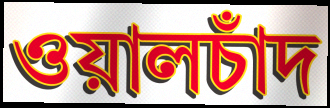
ওয়ালচাঁদ